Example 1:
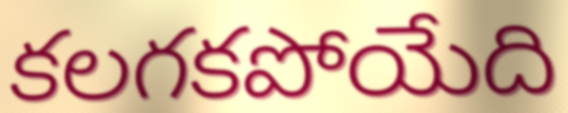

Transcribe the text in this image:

కలగకపోయేది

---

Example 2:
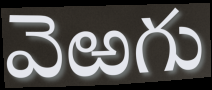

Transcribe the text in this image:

వెఱగు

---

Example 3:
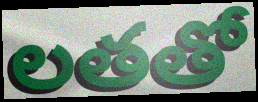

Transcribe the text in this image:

లతతో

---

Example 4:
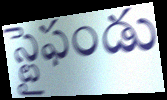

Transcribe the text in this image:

స్టైఫండు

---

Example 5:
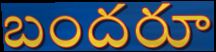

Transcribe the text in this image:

బందరూ